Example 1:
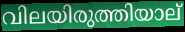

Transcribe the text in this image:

വിലയിരുത്തിയാല്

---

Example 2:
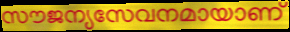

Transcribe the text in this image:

സൗജന്യസേവനമായാണ്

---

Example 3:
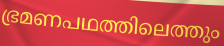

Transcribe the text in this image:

ഭ്രമണപഥത്തിലെത്തും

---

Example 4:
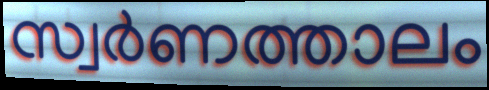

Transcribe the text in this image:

സ്വർണത്താലം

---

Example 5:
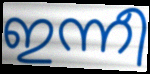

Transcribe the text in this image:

ഇന്നീ